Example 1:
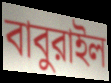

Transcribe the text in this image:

বাবুরাইল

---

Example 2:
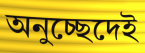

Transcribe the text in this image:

অনুচ্ছেদেই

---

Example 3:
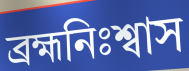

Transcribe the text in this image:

ব্রহ্মনিঃশ্বাস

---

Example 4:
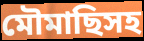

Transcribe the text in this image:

মৌমাছিসহ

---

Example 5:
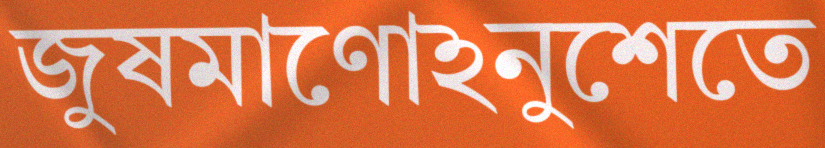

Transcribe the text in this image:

জুষমাণোঽনুশেতে